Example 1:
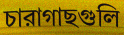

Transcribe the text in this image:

চারাগাছগুলি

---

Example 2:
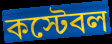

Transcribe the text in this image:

কস্টেবল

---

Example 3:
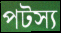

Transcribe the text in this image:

পটস্য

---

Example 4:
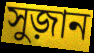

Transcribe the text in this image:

সুজ়ান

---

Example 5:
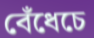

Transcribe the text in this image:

বেঁধেচে